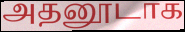
அதனூடாக